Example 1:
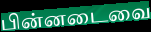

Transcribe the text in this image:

பின்னடைவை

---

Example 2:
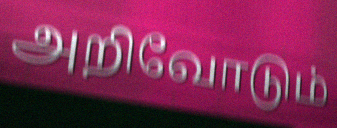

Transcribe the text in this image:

அறிவோடும்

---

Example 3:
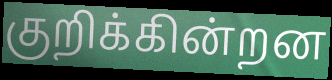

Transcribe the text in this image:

குறிக்கின்றன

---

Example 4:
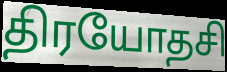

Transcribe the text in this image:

திரயோதசி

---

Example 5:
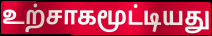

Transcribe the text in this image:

உற்சாகமூட்டியது